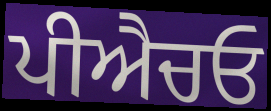
ਪੀਐਚਓ